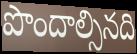
పొందాల్సినది